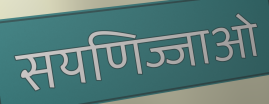
सयणिज्जाओ